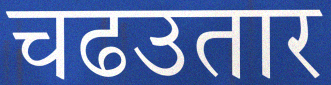
चढउतार